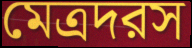
মেত্রদরস